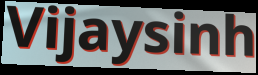
Vijaysinh